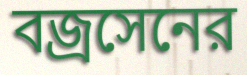
বজ্রসেনের